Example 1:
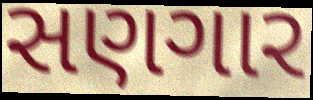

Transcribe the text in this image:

સણગાર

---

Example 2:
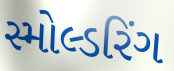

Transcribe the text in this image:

સ્મોલ્ડરિંગ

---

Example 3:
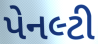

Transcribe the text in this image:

પેનલ્ટી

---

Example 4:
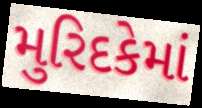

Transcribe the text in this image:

મુરિદકેમાં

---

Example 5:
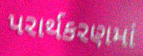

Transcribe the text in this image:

પરાર્થકરણમાં